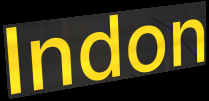
Indon